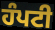
ਹੰਪਟੀ